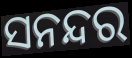
ସନନ୍ଦର